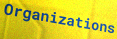
Organizations